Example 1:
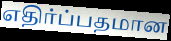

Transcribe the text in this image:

எதிர்ப்பதமான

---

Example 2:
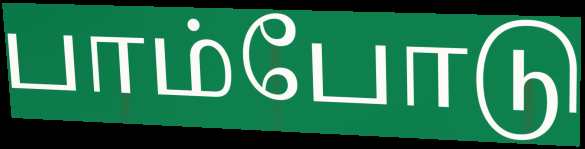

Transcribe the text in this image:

பாம்போடு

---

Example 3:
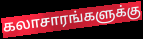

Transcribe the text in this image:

கலாசாரங்களுக்கு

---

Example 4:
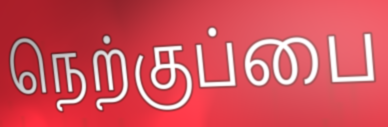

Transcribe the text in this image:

நெற்குப்பை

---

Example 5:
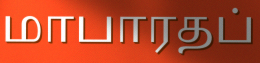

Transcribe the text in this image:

மாபாரதப்